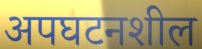
अपघटनशील